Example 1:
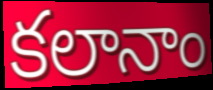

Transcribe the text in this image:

కలానాం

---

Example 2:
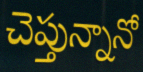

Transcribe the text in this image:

చెప్తున్నానో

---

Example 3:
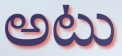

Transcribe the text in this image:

అటు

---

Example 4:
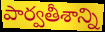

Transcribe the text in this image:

పార్వతీశాన్ని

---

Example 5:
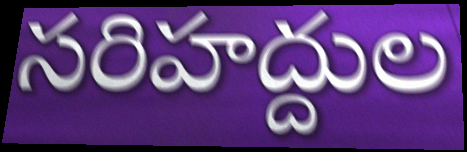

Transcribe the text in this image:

సరిహద్దుల